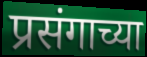
प्रसंगाच्या